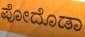
ಪೋದೊಡಾ